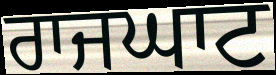
ਰਾਜਘਾਟ